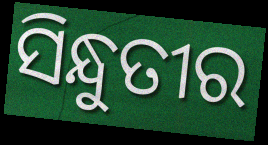
ସିନ୍ଧୁତୀର